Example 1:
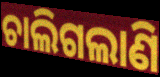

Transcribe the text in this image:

ଚାଲିଗଲାଣି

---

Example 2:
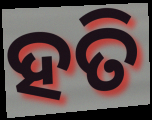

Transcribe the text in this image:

ହତି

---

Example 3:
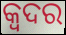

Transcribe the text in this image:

କ୍ୱଦର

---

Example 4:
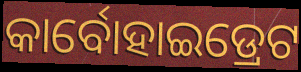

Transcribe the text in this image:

କାର୍ବୋହାଇଡ୍ରେଟ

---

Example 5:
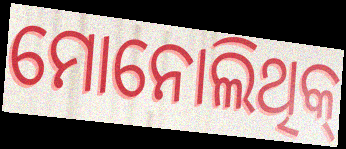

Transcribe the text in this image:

ମୋନୋଲିଥିକ୍